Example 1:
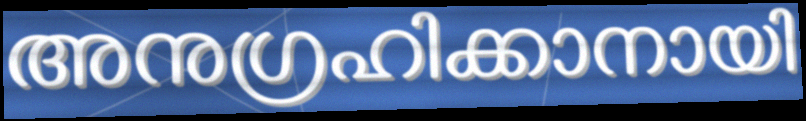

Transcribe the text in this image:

അനുഗ്രഹിക്കാനായി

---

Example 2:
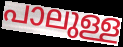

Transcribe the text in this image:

പാലുള്ള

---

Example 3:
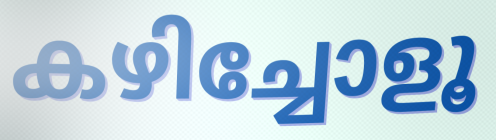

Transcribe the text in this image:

കഴിച്ചോളൂ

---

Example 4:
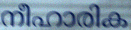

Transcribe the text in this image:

നീഹാരിക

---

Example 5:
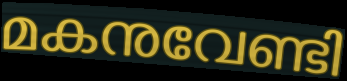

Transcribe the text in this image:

മകനുവേണ്ടി